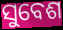
ସୁବେଶ